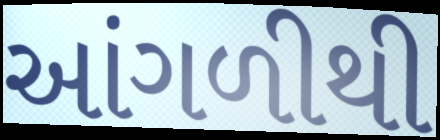
આંગળીથી